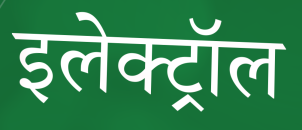
इलेक्ट्रॉल